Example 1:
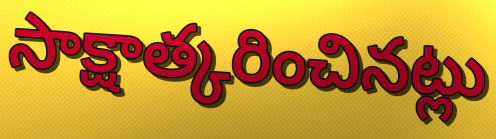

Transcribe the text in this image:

సాక్షాత్కరించినట్లు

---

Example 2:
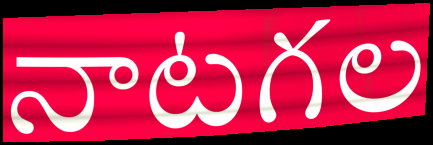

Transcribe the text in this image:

నాటగల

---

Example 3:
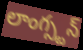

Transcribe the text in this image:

లాంగ్స్టన్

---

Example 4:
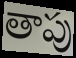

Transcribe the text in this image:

తాపు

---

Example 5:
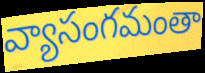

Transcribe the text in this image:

వ్యాసంగమంతా